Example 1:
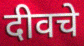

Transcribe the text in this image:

दीवचे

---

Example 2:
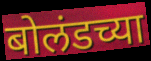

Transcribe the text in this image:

बोलंडच्या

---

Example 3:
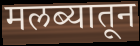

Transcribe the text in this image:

मलब्यातून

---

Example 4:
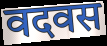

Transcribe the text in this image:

वदवस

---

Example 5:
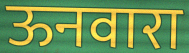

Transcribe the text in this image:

ऊनवारा